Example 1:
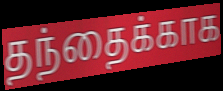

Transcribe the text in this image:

தந்தைக்காக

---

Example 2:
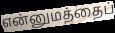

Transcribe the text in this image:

என்னுமத்தைப்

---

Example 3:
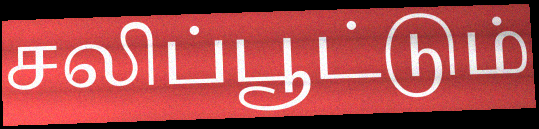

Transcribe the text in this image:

சலிப்பூட்டும்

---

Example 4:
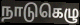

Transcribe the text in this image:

நாடுகெழு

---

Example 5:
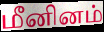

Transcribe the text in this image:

மீனினம்